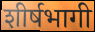
शीर्षभागी